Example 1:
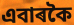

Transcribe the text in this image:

এবাৰকৈ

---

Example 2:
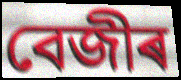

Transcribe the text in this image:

বেজীৰ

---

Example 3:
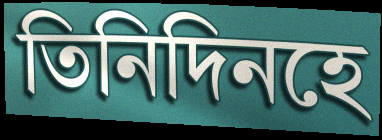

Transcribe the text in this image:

তিনিদিনহে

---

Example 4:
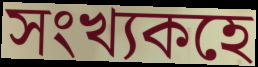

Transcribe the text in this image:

সংখ্যকহে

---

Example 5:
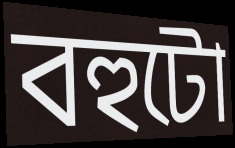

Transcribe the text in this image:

বহুটো